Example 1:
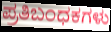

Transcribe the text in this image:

ಪ್ರತಿಬಂಧಕಗಳು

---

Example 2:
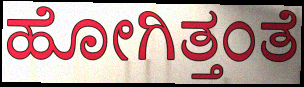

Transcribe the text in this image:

ಹೋಗಿತ್ತಂತೆ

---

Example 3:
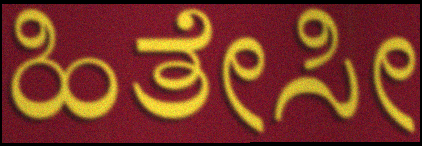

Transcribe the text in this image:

ಹಿತೇಸೀ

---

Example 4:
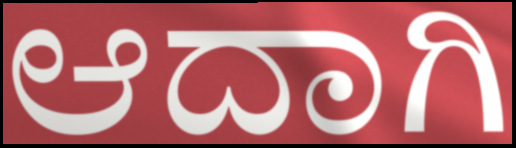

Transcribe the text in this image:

ಆದಾಗಿ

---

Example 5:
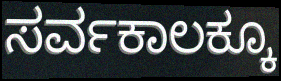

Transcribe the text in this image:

ಸರ್ವಕಾಲಕ್ಕೂ